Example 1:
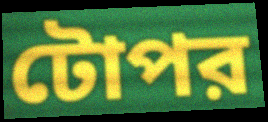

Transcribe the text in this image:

টোপর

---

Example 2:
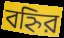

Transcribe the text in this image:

বহ্নির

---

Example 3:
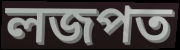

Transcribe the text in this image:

লজপত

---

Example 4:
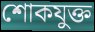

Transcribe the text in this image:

শোকযুক্ত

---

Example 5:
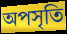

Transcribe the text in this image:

অপসৃতি